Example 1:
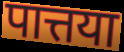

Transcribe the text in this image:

पात्तया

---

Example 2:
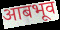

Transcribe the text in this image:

आबभूव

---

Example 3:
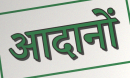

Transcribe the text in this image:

आदानों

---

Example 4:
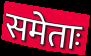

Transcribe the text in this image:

समेताः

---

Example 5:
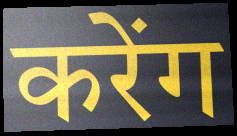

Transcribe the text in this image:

करेंग